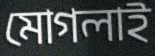
মোগলাই